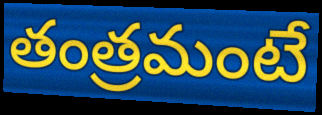
తంత్రమంటే